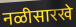
नळीसारखे